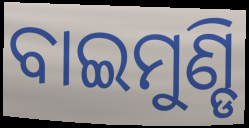
ବାଇମୁଣ୍ଡି